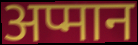
अप्मान